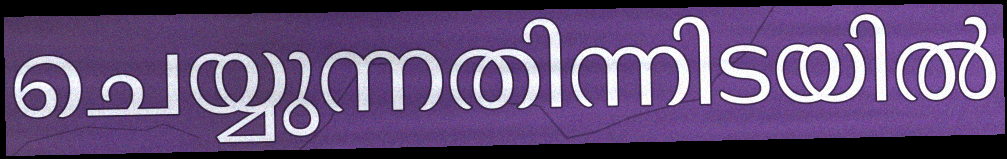
ചെയ്യുന്നതിന്നിടയിൽ